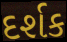
દર્શક